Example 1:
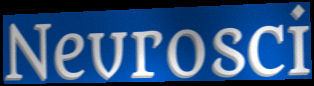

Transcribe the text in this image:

Neurosci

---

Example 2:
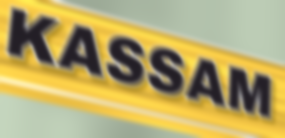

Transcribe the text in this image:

KASSAM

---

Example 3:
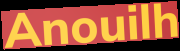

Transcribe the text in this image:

Anouilh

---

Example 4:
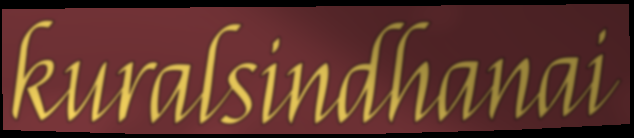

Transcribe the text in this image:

kuralsindhanai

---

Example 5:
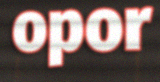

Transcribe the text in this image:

opor